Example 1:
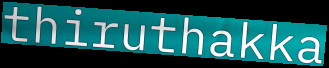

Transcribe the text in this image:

thiruthakka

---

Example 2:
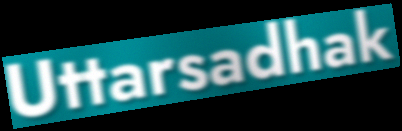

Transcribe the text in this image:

Uttarsadhak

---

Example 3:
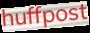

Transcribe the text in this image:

huffpost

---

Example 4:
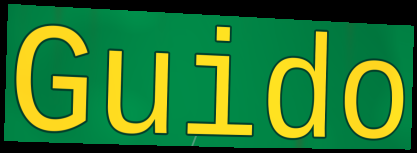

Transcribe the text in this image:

Guido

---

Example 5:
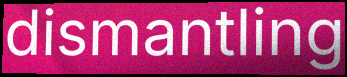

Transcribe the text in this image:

dismantling